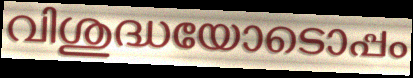
വിശുദ്ധയോടൊപ്പം